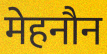
मेहनौन